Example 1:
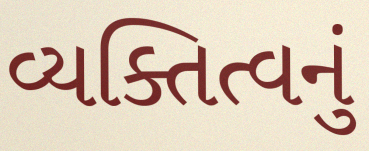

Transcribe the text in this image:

વ્યક્તિત્વનું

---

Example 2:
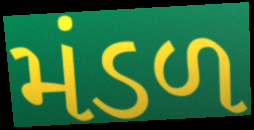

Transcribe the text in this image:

મંડળ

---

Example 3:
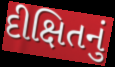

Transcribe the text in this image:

દીક્ષિતનું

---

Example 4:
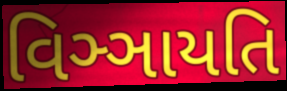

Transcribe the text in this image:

વિઞ્ઞાયતિ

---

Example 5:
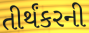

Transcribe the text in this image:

તીર્થંકરની